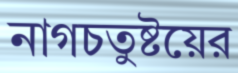
নাগচতুষ্টয়ের